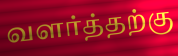
வளர்த்தற்கு